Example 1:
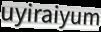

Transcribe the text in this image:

uyiraiyum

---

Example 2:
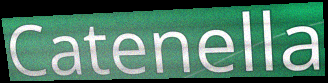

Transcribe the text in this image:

Catenella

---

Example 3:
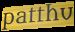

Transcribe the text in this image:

patthu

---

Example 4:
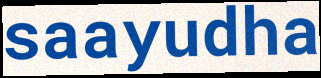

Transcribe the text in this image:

saayudha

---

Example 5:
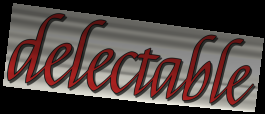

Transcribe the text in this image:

delectable